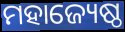
ମହାଜ୍ୟେଷ୍ଠ